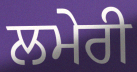
ਲਮੇਰੀ